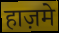
हाज़मे